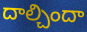
దాల్చిందా